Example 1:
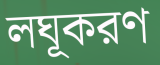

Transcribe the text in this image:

লঘূকরণ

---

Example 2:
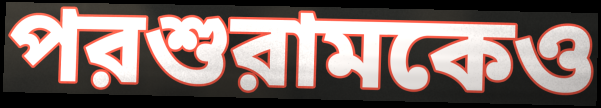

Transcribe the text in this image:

পরশুরামকেও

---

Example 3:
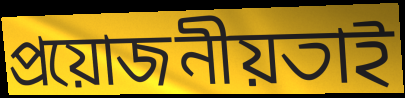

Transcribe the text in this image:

প্রয়োজনীয়তাই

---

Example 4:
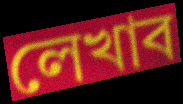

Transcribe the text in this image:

লেখাব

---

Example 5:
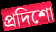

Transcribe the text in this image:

প্রদিশো